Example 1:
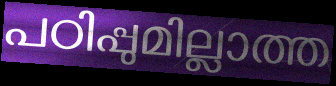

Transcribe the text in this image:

പഠിപ്പുമില്ലാത്ത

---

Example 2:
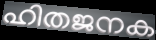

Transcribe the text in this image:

ഹിതജനക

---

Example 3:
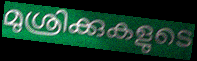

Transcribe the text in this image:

മുശ്രിക്കുകളുടെ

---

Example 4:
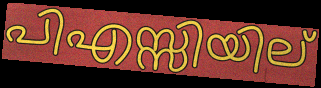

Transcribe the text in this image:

പിഎസ്സിയില്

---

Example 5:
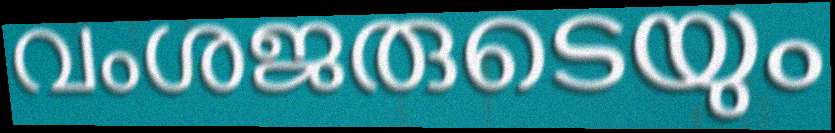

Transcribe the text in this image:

വംശജരുടെയും